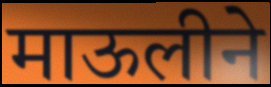
माऊलीने